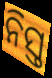
ନିସ୍ତ